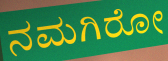
ನಮಗಿರೋ